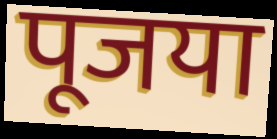
पूजया